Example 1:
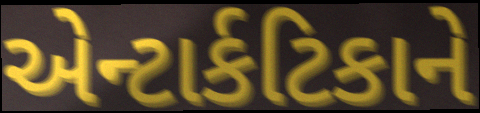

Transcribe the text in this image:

એન્ટાર્કટિકાને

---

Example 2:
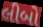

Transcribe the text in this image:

લીબો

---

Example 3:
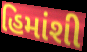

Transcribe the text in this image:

હિમાંશી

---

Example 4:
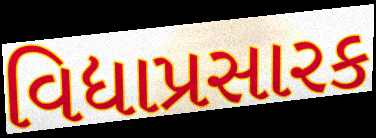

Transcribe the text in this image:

વિદ્યાપ્રસારક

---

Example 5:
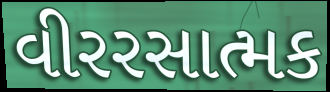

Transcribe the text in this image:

વીરરસાત્મક